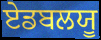
ਏਡਬਲਯੂ